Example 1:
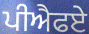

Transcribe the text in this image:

ਪੀਐਫਏ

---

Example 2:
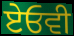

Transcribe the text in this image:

ਏਓਵੀ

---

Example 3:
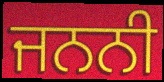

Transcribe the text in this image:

ਜਨਨੀ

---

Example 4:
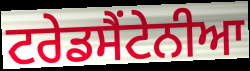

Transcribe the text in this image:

ਟਰੇਡਸੈਂਟੇਨੀਆ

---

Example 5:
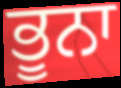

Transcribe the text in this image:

ਭੂਨਾ